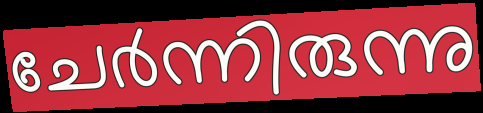
ചേർന്നിരുന്നു